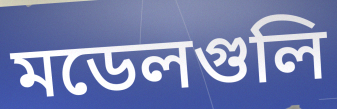
মডেলগুলি